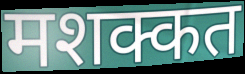
मशक्कत